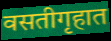
वसतीगृहात